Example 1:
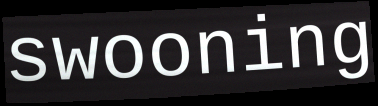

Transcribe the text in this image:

swooning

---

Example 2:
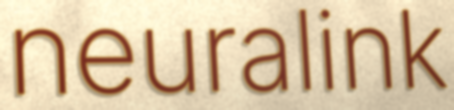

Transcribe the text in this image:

neuralink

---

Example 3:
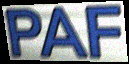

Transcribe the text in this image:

PAF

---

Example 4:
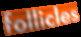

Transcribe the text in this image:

follicles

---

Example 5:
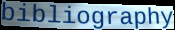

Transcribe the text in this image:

bibliography